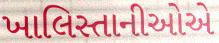
ખાલિસ્તાનીઓએ